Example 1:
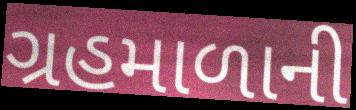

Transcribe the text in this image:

ગ્રહમાળાની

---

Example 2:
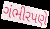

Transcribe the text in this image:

ગંભીરપણે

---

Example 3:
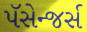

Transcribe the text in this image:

પૅસેન્જર્સ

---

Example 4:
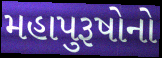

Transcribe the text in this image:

મહાપુરૂષોનો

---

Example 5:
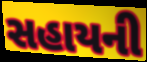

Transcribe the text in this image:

સહાયની